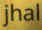
jhal